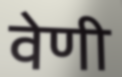
वेणी